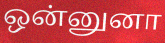
ஒன்னுனா